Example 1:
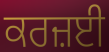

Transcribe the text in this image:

ਕਰਜ਼ਈ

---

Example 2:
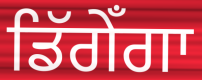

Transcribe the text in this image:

ਡਿੱਗੇਁਗਾ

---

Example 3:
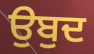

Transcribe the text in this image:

ਉਬੁਦ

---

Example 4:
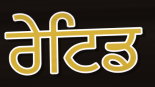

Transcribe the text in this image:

ਰੇਟਿਡ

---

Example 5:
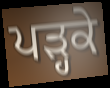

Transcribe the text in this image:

ਪੜ੍ਹਕੇ